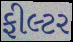
ફીલ્ટર